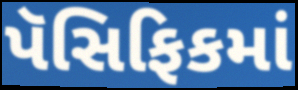
પૅસિફિકમાં